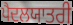
ਪੈਦਲਯਾਤਰੀ